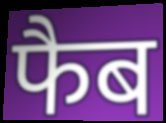
फैब